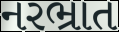
નરભ્રાત